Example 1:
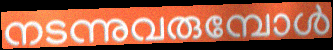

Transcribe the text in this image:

നടന്നുവരുമ്പോൾ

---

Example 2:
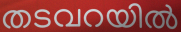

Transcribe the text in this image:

തടവറയിൽ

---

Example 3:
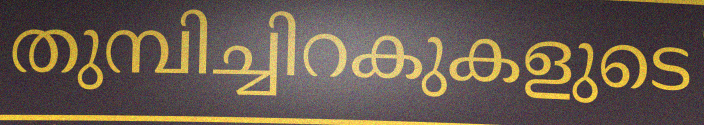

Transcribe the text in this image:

തുമ്പിച്ചിറകുകളുടെ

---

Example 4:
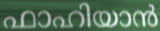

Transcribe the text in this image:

ഫാഹിയാൻ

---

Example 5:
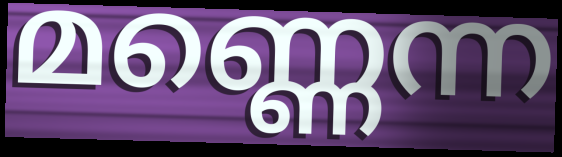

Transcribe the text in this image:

മണ്ണെന്ന